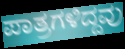
ಪಾತ್ರಗಳಿದ್ದವು